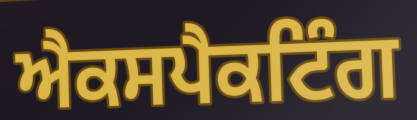
ਐਕਸਪੈਕਟਿੰਗ